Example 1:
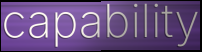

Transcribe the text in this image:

capability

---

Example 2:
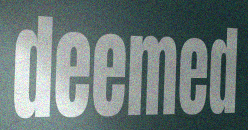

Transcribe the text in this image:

deemed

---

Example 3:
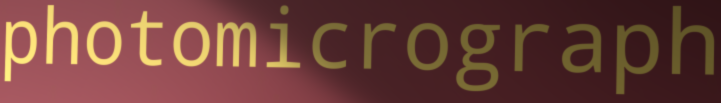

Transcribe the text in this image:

photomicrograph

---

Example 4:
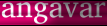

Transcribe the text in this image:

angavar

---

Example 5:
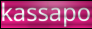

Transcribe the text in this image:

kassapo